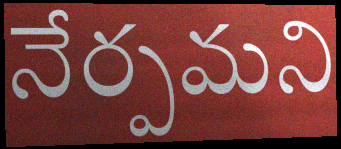
నేర్పమని